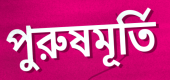
পুরুষমূর্তি